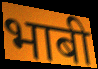
भाबी